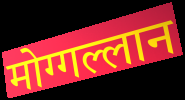
मोग्गल्लान